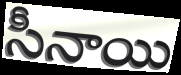
సీనాయి